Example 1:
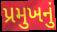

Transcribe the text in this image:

પ્રમુખનું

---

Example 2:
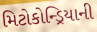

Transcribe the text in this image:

મિટોકોન્ડ્રિયાની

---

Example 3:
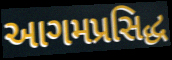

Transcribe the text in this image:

આગમપ્રસિદ્ધ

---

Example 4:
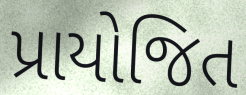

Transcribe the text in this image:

પ્રાયોજિત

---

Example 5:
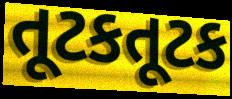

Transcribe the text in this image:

તૂટકતૂટક